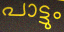
പാട്ടും